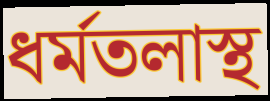
ধর্মতলাস্থ